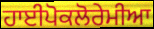
ਹਾਈਪੋਕਲੋਰੇਮੀਆ